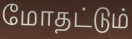
மோதட்டும்